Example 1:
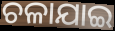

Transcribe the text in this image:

ଚଳାଯାଇ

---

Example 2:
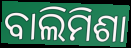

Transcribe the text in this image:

ବାଲିମିଶା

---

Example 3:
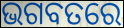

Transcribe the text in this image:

ଭଗବତରେ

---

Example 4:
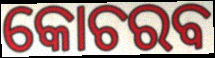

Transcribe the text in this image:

କୋଚରବ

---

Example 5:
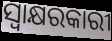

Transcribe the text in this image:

ସ୍ୱାକ୍ଷରକାରୀ